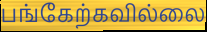
பங்கேற்கவில்லை